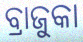
ବ୍ରାଜୁକା